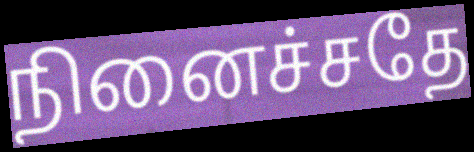
நினைச்சதே